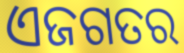
ଏଜଗତର